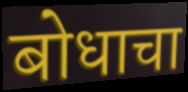
बोधाचा